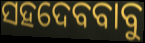
ସହଦେବବାବୁ